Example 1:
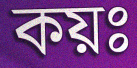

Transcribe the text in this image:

কয়ঃ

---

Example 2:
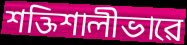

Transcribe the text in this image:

শক্তিশালীভাৱে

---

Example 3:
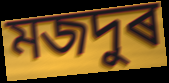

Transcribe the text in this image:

মজদুৰ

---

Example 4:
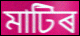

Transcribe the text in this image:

মাটিৰ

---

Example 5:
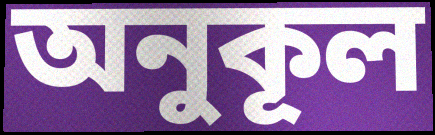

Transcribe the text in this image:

অনুকূল